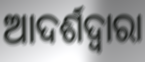
ଆଦର୍ଶଦ୍ୱାରା